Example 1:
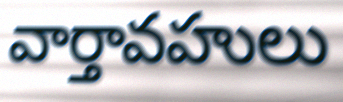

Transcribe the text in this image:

వార్తావహులు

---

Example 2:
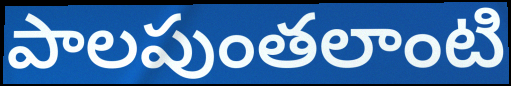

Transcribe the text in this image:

పాలపుంతలాంటి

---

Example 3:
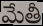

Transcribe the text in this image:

మేతీ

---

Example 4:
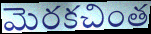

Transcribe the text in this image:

మెరకచింత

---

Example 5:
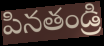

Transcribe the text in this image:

పినతండ్రి